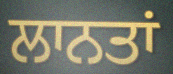
ਲਾਨਤਾਂ